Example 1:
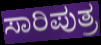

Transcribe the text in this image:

ಸಾರಿಪುತ್ರ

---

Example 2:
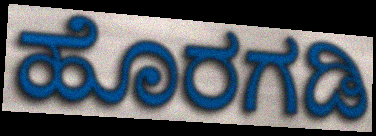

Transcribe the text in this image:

ಹೊರಗಡಿ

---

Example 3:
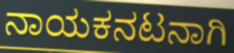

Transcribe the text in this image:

ನಾಯಕನಟನಾಗಿ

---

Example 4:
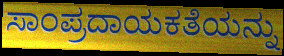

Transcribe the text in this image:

ಸಾಂಪ್ರದಾಯಕತೆಯನ್ನು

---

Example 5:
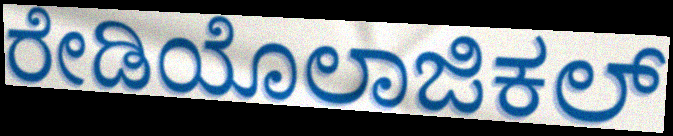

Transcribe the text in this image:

ರೇಡಿಯೊಲಾಜಿಕಲ್